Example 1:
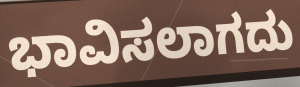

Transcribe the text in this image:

ಭಾವಿಸಲಾಗದು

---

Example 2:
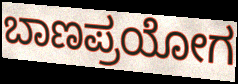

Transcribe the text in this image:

ಬಾಣಪ್ರಯೋಗ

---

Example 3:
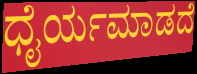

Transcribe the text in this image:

ಧೈರ್ಯಮಾಡದೆ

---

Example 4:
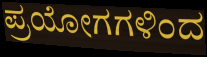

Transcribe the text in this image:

ಪ್ರಯೋಗಗಳಿಂದ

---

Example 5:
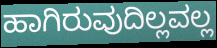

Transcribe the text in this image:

ಹಾಗಿರುವುದಿಲ್ಲವಲ್ಲ